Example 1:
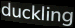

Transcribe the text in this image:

duckling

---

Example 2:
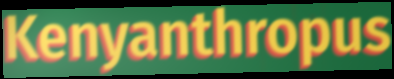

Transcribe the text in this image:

Kenyanthropus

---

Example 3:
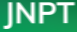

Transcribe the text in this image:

JNPT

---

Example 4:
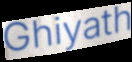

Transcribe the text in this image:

Ghiyath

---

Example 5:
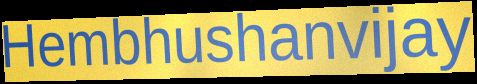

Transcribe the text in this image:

Hembhushanvijay